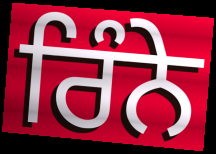
ਰਿੰਨੇ